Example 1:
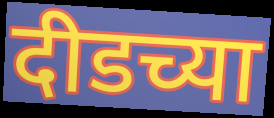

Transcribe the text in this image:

दीडच्या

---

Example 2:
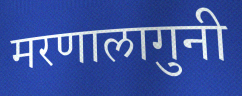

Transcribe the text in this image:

मरणालागुनी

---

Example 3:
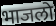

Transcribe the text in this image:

भाजलो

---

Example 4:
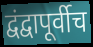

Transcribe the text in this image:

द्वंद्वापूर्वीच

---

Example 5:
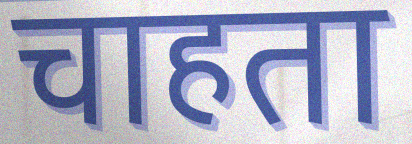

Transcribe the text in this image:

चाहता